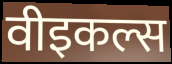
वीइकल्‍स